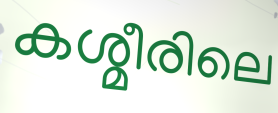
കശ്മീരിലെ